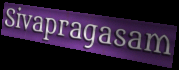
Sivapragasam